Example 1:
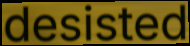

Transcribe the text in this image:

desisted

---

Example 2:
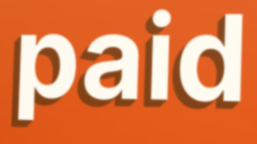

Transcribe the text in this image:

paid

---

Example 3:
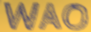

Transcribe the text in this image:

WAO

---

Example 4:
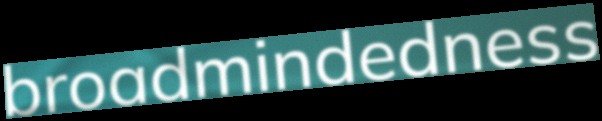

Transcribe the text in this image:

broadmindedness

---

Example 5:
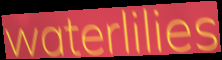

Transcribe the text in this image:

waterlilies